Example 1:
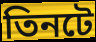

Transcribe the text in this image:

তিনটে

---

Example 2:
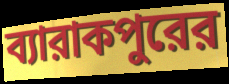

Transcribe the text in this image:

ব্যারাকপুরের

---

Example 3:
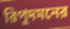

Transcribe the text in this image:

রিপুদমনের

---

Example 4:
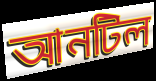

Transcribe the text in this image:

আনটিল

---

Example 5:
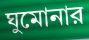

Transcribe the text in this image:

ঘুমোনার